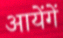
आयेंगें